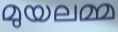
മുയലമ്മ